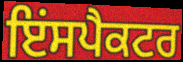
ਇਂਸਪੈਕਟਰ